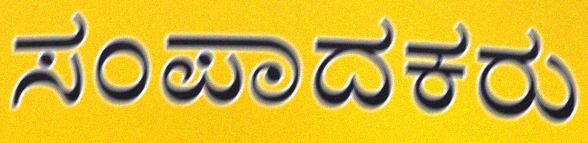
ಸಂಪಾದಕರು